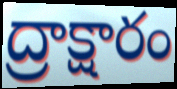
ద్రాక్షారం